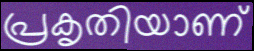
പ്രകൃതിയാണ്